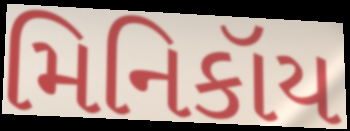
મિનિકૉય